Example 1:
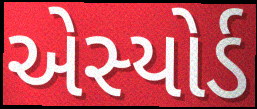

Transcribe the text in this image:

એસ્યોર્ડ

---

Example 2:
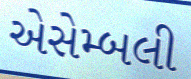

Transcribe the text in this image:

એસેમ્બલી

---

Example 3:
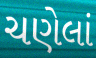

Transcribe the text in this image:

ચણેલાં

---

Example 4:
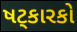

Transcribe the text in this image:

ષટ્કારકો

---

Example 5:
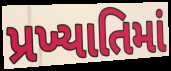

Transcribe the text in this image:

પ્રખ્યાતિમાં